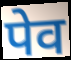
पेव